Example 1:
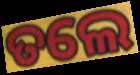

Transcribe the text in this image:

ତଲେ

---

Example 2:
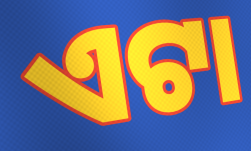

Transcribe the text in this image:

ଏଟା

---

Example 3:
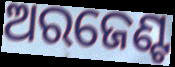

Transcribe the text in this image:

ଅରଜେଣ୍ଟ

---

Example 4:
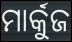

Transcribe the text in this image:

ମାର୍କୁଜ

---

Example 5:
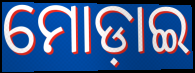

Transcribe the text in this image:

ମୋଡ଼ାଇ